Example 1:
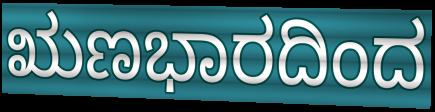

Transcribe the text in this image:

ಋಣಭಾರದಿಂದ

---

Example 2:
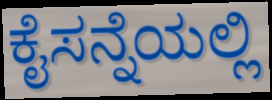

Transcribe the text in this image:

ಕೈಸನ್ನೆಯಲ್ಲಿ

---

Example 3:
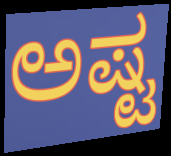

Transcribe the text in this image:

ಅಷ್ಟ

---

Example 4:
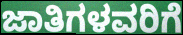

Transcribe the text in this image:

ಜಾತಿಗಳವರಿಗೆ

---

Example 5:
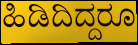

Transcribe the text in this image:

ಹಿಡಿದಿದ್ದರೂ